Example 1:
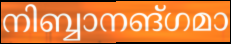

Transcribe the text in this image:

നിബ്ബാനങ്ഗമാ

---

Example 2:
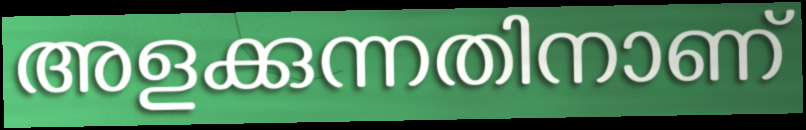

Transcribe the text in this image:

അളക്കുന്നതിനാണ്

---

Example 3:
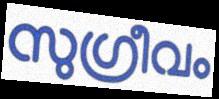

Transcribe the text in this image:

സുഗ്രീവം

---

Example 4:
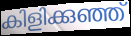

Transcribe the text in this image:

കിളിക്കുഞ്ഞ്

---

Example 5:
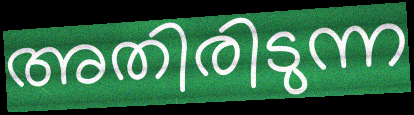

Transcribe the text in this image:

അതിരിടുന്ന